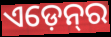
ଏଡ଼େନ୍‍ର